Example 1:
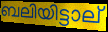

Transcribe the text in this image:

ബലിയിട്ടാല്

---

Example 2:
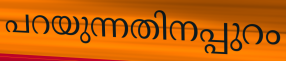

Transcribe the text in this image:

പറയുന്നതിനപ്പുറം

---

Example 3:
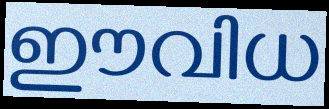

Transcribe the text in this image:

ഈവിധ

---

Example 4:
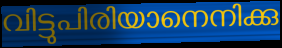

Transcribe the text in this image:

വിട്ടുപിരിയാനെനിക്കു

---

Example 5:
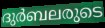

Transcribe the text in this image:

ദുർബലരുടെ